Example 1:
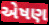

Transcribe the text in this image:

એષણ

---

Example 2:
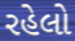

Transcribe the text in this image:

રહેલો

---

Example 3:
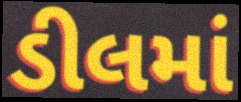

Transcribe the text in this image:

ડીલમાં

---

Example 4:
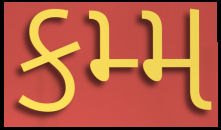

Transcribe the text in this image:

કમ્મ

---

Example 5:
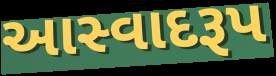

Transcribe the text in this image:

આસ્વાદરૂપ